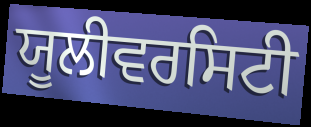
ਯੂਲੀਵਰਸਿਟੀ